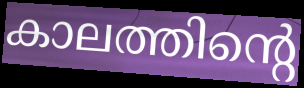
കാലത്തിന്റെ